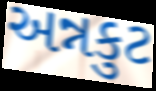
અન્નકુટ